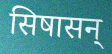
सिषासन्